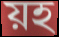
য়হ